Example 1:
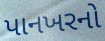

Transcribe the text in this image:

પાનખરનો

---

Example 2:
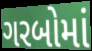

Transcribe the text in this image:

ગરબોમાં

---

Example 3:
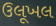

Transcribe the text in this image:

ઉલૂખલ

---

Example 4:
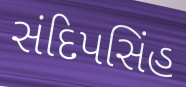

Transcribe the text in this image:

સંદિપસિંહ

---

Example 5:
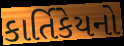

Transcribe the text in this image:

કાર્તિકેયનો